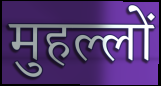
मुहल्लों